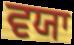
ਵਯਾ